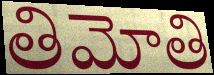
తిమోతి